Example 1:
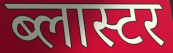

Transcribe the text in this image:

ब्लास्टर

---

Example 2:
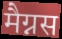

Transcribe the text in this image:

मैग्नस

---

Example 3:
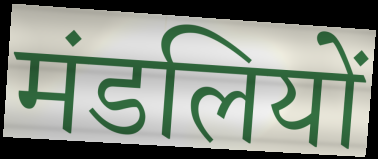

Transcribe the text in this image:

मंडलियों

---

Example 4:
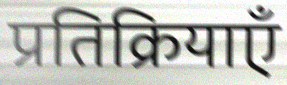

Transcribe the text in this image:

प्रतिक्रियाएँ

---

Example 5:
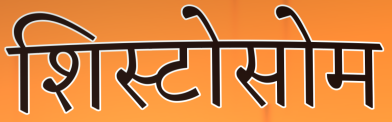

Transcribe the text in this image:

शिस्टोसोम